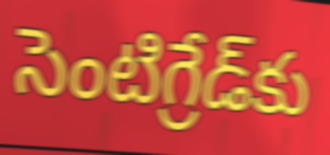
సెంటిగ్రేడ్‌కు